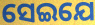
ସେଇଯେ